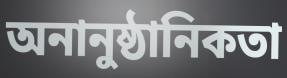
অনানুষ্ঠানিকতা